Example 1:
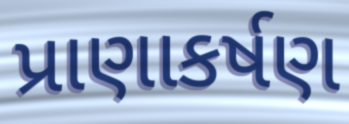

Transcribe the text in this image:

પ્રાણાકર્ષણ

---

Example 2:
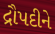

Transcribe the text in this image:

દ્રૌપદીને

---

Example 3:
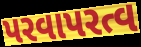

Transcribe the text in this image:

પરવાપરત્વ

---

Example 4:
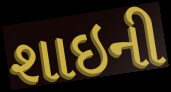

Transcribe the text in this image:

શાઇની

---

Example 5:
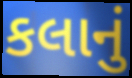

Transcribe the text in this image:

કલાનું